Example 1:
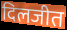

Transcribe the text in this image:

दिलजीत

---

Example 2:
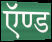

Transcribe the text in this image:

ऍण्ड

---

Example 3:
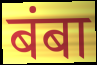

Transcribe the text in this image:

बंबा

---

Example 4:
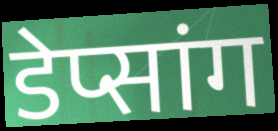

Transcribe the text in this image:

डेप्सांग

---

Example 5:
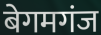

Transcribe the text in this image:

बेगमगंज